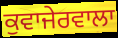
ਕੁਵਾਜੇਰਵਾਲਾ